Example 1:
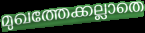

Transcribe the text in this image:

മുഖത്തേക്കല്ലാതെ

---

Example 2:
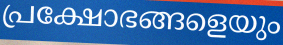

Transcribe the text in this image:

പ്രക്ഷോഭങ്ങളെയും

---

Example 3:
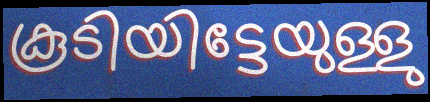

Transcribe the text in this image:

കൂടിയിട്ടേയുള്ളു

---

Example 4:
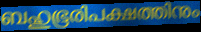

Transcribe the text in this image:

ബഹുഭൂരിപക്ഷത്തിനും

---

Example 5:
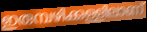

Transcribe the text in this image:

ഇരുമ്പഴിക്കുള്ളിലാണ്